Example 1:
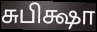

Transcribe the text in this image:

சுபிக்ஷா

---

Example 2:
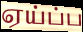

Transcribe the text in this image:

ஏய்ப்ப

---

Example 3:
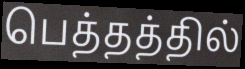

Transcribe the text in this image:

பெத்தத்தில்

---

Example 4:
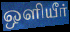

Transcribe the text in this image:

ஒளியீர்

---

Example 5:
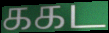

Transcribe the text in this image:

ககட